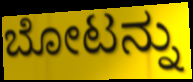
ಬೋಟನ್ನು